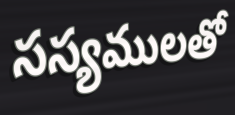
సస్యములతో